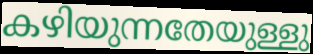
കഴിയുന്നതേയുള്ളു